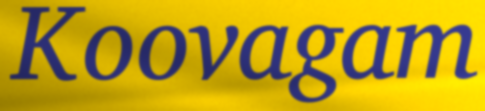
Koovagam